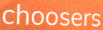
choosers